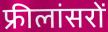
फ्रीलांसरों